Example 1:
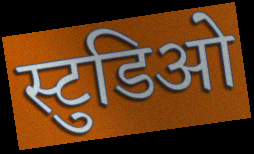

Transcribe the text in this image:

स्टुडिओ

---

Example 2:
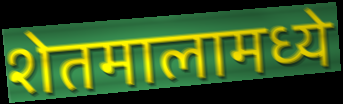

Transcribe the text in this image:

शेतमालामध्ये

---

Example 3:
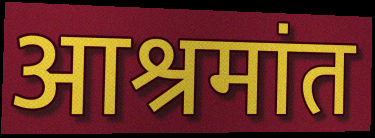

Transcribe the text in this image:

आश्रमांत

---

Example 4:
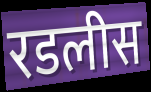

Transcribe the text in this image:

रडलीस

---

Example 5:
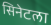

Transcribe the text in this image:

सिनेटला